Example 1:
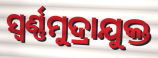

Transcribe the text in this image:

ସ୍ବର୍ଣ୍ଣମୁଦ୍ରାଯୁକ୍ତ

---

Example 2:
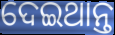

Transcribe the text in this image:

ଦେଇଥାନ୍ତ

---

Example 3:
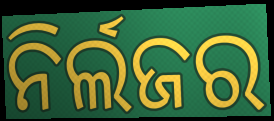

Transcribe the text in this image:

ନିର୍ଲଜର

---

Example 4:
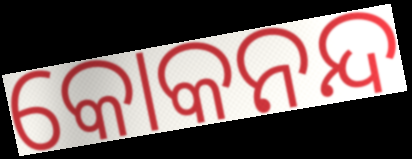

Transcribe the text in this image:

କୋକନନ୍ଦ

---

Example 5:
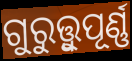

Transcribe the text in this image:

ଗୁରୁତ୍ତ୍ୱୁପୂର୍ଣ୍ଣ